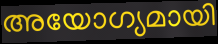
അയോഗ്യമായി